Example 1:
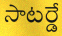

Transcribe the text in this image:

సాటర్డే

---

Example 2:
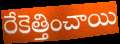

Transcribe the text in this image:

రేకెత్తించాయి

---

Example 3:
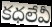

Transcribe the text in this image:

కధలేవీ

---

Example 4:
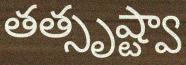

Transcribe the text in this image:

తత్సృష్ట్వా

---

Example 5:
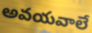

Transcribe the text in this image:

అవయవాలే